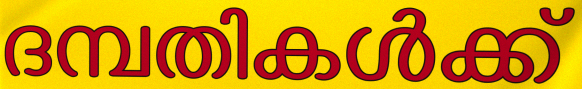
ദമ്പതികൾക്ക്